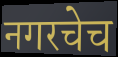
नगरचेच